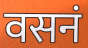
वसनं